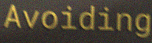
Avoiding